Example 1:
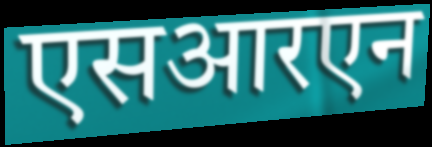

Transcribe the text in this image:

एसआरएन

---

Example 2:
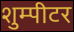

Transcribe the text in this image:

शुम्पीटर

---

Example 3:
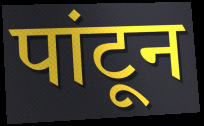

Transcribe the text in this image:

पांटून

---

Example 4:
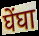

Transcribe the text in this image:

घेंघा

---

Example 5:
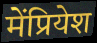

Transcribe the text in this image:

मेंप्रियेश